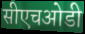
सीएचओडी